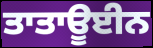
ਤਾਤਾਊਈਨ